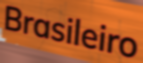
Brasileiro